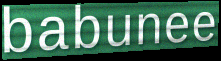
babunee